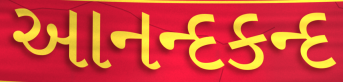
આનન્દકન્દ